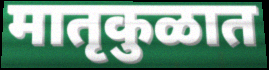
मातृकुळात